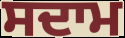
ਸਦਾਮ